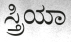
ಸ್ತ್ರಿಯಾ